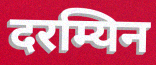
दरम्यिन